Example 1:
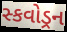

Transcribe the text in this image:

સ્કવોડ્રન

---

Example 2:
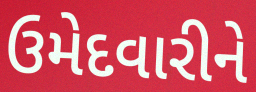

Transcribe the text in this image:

ઉમેદવારીને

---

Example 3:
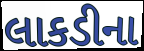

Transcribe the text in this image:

લાકડીના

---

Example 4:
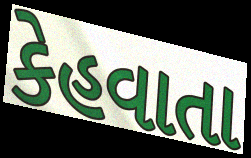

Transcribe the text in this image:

કેહવાતા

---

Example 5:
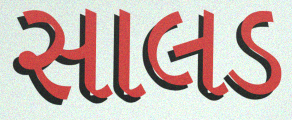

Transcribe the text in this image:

સાલડ